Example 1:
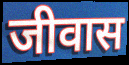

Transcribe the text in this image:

जीवास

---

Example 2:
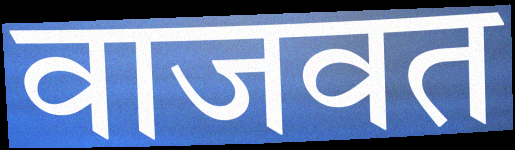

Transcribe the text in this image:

वाजवत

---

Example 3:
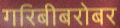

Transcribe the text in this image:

गरिबीबरोबर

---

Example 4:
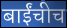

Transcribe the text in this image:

बाईंचीच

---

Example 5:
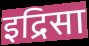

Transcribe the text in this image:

इद्रिसा